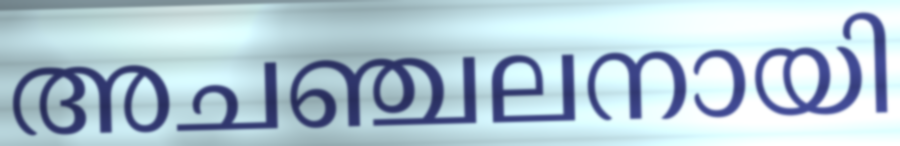
അചഞ്ചലനായി